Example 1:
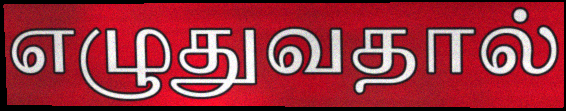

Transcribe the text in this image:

எழுதுவதால்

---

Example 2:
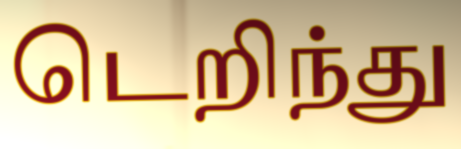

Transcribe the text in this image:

டெறிந்து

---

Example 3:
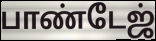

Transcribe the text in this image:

பாண்டேஜ்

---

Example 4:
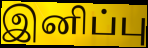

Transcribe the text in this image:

இனிப்பு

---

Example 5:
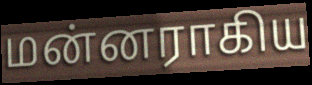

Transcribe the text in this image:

மன்னராகிய